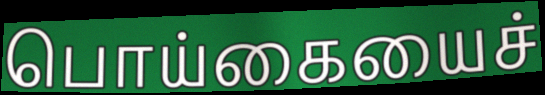
பொய்கையைச்